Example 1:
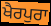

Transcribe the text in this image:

ਖੈਰਪੁਰਾ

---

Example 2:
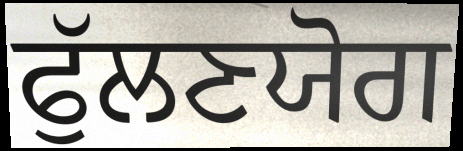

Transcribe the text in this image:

ਫੁੱਲਣਯੋਗ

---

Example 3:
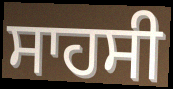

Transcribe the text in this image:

ਸਾਹਸੀ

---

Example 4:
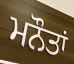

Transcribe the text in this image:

ਮਨੌਤਾਂ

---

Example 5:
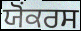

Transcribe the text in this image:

ਯੋੰਕਰਸ